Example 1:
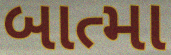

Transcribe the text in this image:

બાત્મા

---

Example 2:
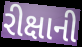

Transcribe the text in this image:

રીક્ષાની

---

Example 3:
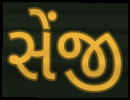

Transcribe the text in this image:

સેંજી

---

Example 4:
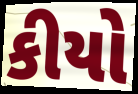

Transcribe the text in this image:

કીયો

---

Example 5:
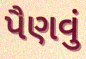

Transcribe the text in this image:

પૈણવું